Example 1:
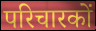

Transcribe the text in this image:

परिचारकों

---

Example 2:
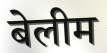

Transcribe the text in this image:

बेलीम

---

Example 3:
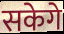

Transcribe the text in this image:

सकेगे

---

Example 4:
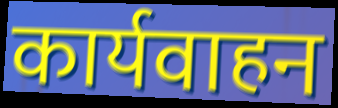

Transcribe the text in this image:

कार्यवाहन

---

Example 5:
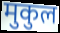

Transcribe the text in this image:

मुकुल